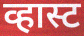
व्हास्ट